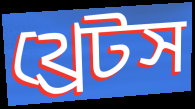
থ্রেটস